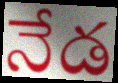
నేడ